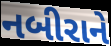
નબીરાને